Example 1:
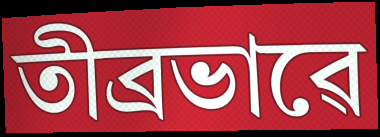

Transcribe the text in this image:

তীব্ৰভাৱে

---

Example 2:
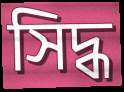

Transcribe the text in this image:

সিদ্ধ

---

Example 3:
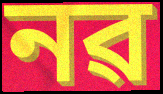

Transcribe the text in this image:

নৱ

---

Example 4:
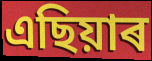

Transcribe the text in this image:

এছিয়াৰ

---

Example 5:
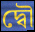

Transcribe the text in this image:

দ্বৌ